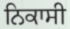
ਨਿਕਾਸੀ